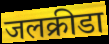
जलक्रीडा